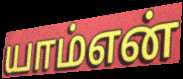
யாம்என்